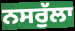
ਨਸਰੁੱਲਾ